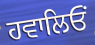
ਹਵਾਲਿਓਂ